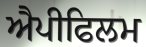
ਐਪੀਫਿਲਮ